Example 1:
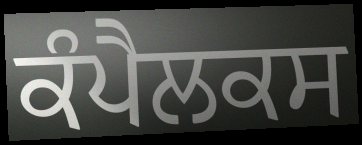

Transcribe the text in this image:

ਕੰਪੈਲਕਸ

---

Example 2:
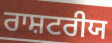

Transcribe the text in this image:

ਰਾਸ਼ਟਰੀਯ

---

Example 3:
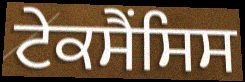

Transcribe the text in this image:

ਟੇਕਸੈਂਸਿਸ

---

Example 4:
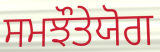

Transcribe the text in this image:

ਸਮਝੌਤੇਯੋਗ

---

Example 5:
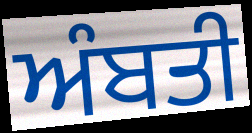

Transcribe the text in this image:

ਅੰਬਤੀ